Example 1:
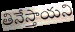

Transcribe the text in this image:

తినేస్తాయని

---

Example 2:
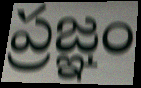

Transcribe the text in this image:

ప్రజ్ఞం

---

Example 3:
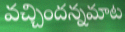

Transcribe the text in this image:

వచ్చిందన్నమాట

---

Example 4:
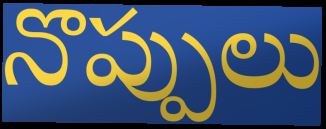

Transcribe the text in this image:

నొప్పులు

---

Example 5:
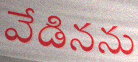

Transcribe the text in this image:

వేడినను